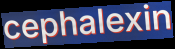
cephalexin